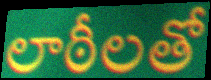
లాఠీలతో